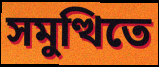
সমুত্থিতে